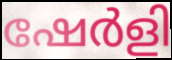
ഷേർളി